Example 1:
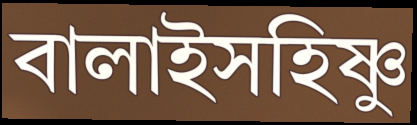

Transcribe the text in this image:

বালাইসহিষ্ণু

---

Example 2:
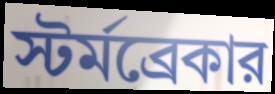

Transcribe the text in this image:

স্টর্মব্রেকার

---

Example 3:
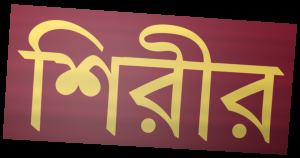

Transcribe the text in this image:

শিরীর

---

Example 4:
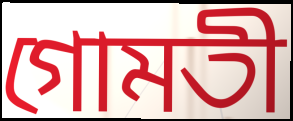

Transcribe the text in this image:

গোমতী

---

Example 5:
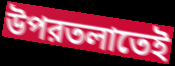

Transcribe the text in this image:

উপরতলাতেই